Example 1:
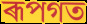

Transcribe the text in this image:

ৰূপগত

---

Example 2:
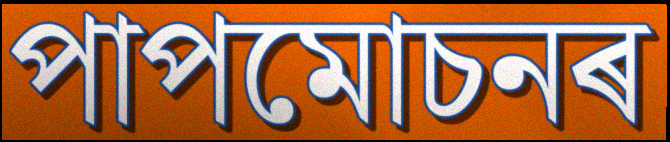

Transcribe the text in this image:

পাপমোচনৰ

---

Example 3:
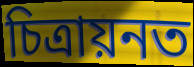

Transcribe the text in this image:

চিত্ৰায়নত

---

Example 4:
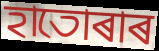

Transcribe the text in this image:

হাতোৰাৰ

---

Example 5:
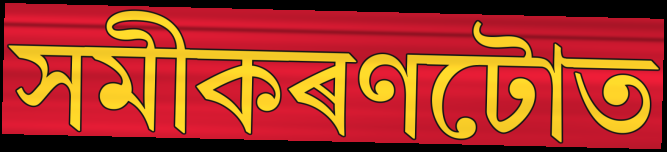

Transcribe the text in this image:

সমীকৰণটোত